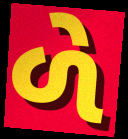
ળે